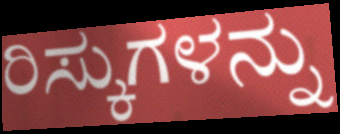
ರಿಸ್ಕುಗಳನ್ನು